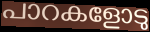
പാറകളോടു